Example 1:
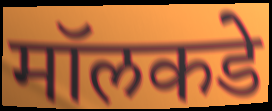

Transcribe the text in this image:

मॉलकडे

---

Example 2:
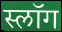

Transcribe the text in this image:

स्लॉग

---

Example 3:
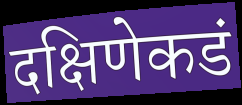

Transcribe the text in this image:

दक्षिणेकडं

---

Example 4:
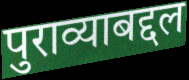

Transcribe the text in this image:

पुराव्याबद्दल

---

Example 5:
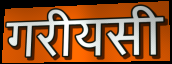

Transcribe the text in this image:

गरीयसी